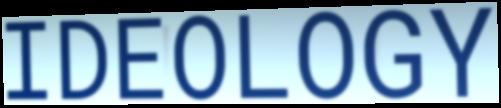
IDEOLOGY